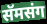
सॅमसंग